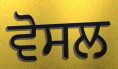
ਵੋਸਲ